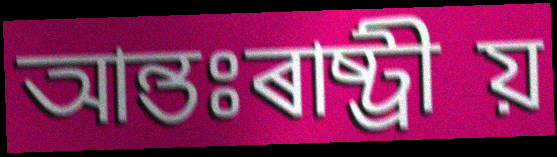
আন্তঃৰাষ্ট্ৰীয়